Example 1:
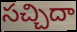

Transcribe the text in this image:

సచ్చిదా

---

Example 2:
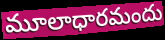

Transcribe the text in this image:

మూలాధారమందు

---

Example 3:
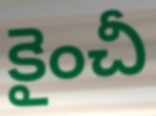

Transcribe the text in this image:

కైంచీ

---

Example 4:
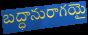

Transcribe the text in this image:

బద్ధానురాగయై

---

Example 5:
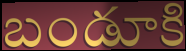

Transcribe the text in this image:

బండూకి